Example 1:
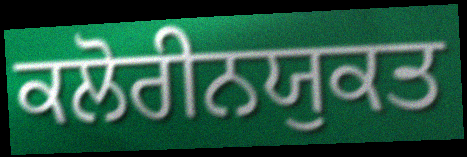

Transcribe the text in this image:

ਕਲੋਰੀਨਯੁਕਤ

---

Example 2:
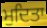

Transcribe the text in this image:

ਮੁਦਿਤਾ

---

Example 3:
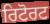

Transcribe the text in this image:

ਰਿਟੋਰਟ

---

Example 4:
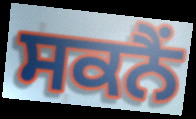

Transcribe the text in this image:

ਸਕਨੈਂ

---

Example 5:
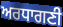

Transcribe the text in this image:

ਅਰਧਾਗਣੀ